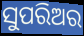
ସୁପରିଅର